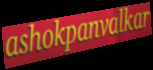
ashokpanvalkar